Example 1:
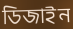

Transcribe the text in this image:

ডিজাইন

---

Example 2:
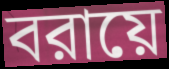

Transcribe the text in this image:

বরায়ে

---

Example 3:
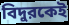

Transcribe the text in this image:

বিদুরকেই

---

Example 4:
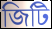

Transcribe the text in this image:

জিটি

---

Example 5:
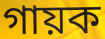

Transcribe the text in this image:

গায়ক